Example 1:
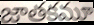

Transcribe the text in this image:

జాతకమూ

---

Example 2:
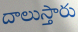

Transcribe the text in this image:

దాలుస్తారు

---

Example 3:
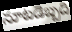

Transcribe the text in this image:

నూటడెబ్బది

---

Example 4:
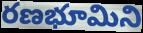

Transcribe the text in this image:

రణభూమిని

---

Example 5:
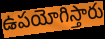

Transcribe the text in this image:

ఉపయోగిస్తారు